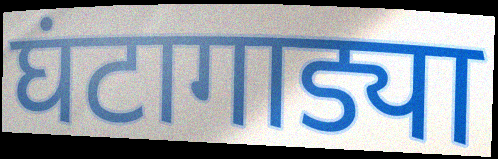
घंटागाड्या